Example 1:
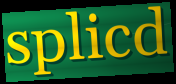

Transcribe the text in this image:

splicd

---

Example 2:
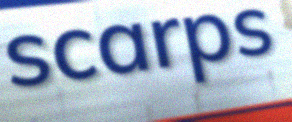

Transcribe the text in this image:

scarps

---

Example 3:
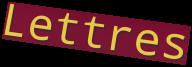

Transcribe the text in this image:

Lettres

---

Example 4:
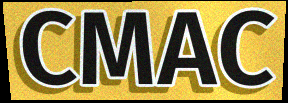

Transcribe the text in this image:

CMAC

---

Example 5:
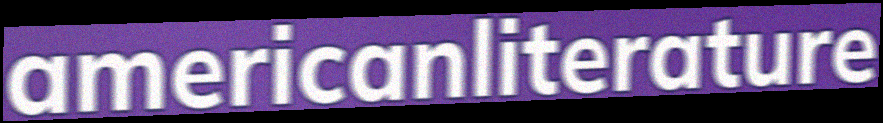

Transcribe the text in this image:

americanliterature